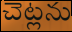
చెట్లను